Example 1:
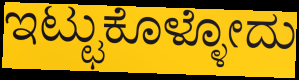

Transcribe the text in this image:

ಇಟ್ಟುಕೊಳ್ಳೋದು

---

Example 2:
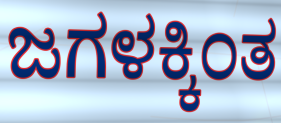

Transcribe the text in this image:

ಜಗಳಕ್ಕಿಂತ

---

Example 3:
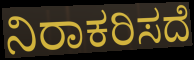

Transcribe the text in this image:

ನಿರಾಕರಿಸದೆ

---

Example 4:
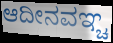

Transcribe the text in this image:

ಆದೀನವಞ್ಚ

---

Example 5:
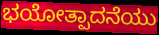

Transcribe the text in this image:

ಭಯೋತ್ಪಾದನೆಯು